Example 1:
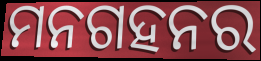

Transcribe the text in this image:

ମନଗହନର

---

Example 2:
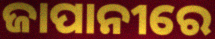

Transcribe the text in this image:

ଜାପାନୀରେ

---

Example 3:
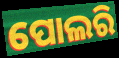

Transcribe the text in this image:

ପୋଲରି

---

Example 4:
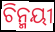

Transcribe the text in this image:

ଚିନ୍ମୟୀ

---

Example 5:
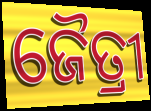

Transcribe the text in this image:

ଜୈତ୍ରୀ